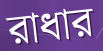
রাধার